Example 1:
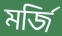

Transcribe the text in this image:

মর্জি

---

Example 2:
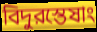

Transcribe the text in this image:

বিদুরস্তেষাং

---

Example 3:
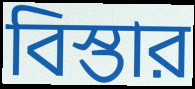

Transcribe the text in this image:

বিস্তার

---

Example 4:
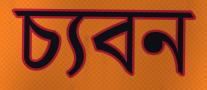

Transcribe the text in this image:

চ্যবন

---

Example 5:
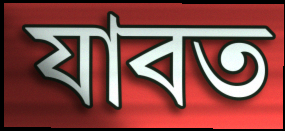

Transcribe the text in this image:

যাবত